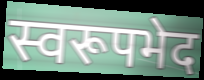
स्वरूपभेद